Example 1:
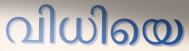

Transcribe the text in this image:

വിധിയെ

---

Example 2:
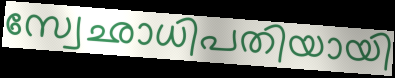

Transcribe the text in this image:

സ്വേഛാധിപതിയായി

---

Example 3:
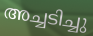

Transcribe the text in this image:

അച്ചടിച്ചു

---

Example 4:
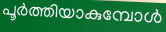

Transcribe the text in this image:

പൂർത്തിയാകുമ്പോൾ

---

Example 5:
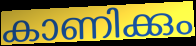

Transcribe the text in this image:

കാണിക്കും